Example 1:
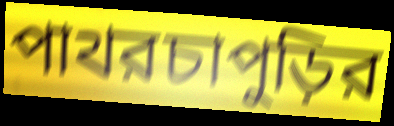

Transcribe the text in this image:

পাথরচাপুড়ির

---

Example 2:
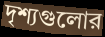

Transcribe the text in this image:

দৃশ্যগুলোর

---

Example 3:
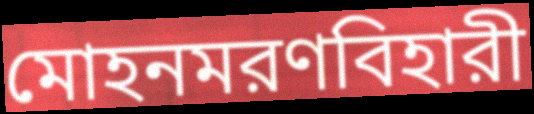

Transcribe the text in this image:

মোহনমরণবিহারী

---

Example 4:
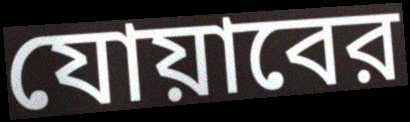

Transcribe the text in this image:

যোয়াবের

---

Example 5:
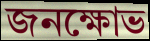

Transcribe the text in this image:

জনক্ষোভ